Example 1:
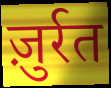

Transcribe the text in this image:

ज़ुर्रत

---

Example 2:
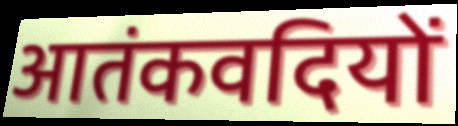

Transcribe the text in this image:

आतंकवदियों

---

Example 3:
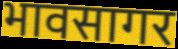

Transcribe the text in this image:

भावसागर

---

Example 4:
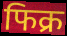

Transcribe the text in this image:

फिक्र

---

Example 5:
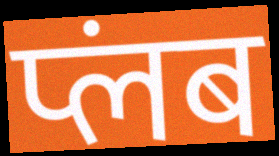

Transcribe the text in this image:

प्लंब